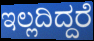
ಇಲ್ಲದಿದ್ದರೆ